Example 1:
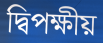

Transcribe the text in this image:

দ্বিপক্ষীয়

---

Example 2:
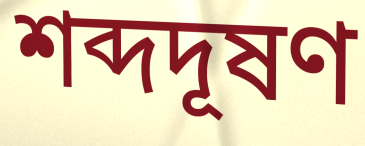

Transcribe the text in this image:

শব্দদূষণ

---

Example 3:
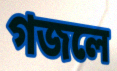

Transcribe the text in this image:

গজলে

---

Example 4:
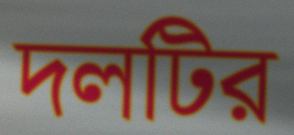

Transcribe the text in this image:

দলটির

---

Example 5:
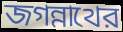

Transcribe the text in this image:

জগন্নাথের